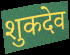
शुकदेव